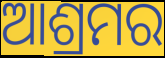
ଆଶ୍ରମର